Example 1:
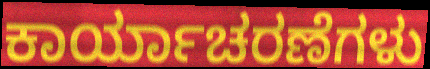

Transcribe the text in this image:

ಕಾರ್ಯಾಚರಣೆಗಳು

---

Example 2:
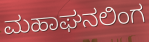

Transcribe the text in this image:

ಮಹಾಘನಲಿಂಗ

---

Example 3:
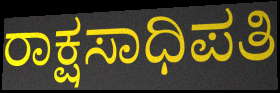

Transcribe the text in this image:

ರಾಕ್ಷಸಾಧಿಪತಿ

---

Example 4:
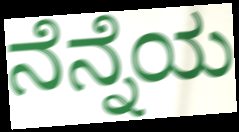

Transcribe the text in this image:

ನೆನ್ನೆಯ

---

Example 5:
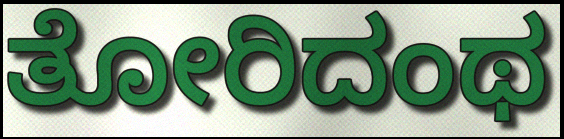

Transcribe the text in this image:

ತೋರಿದಂಥ